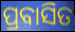
ପ୍ରବାସିତ